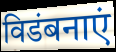
विडंबनाएं